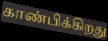
காண்பிக்கிறது